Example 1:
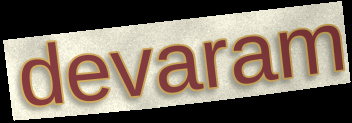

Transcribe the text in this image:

devaram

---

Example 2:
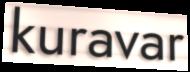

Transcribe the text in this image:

kuravar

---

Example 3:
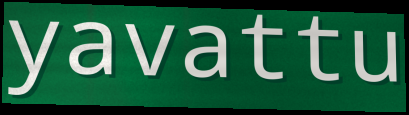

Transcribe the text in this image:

yavattu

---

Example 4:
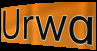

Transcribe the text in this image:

Urwa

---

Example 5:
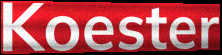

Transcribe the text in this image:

Koester